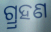
ଗ୍ର୍ରହଣ